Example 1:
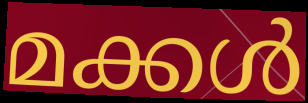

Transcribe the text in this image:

മക്കൾ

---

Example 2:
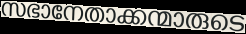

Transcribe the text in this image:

സഭാനേതാക്കന്മാരുടെ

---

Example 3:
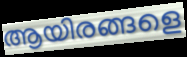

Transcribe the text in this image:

ആയിരങ്ങളെ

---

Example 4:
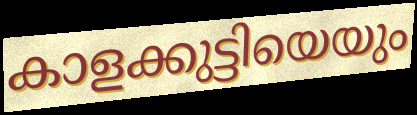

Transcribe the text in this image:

കാളക്കുട്ടിയെയും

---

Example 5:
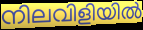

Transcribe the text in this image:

നിലവിളിയിൽ